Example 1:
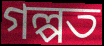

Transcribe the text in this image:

গল্পত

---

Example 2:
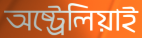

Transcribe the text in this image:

অষ্ট্ৰেলিয়াই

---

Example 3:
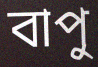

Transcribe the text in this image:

বাপু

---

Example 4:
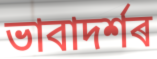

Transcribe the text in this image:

ভাবাদৰ্শৰ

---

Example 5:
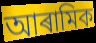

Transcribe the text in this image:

আৰামিক